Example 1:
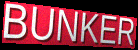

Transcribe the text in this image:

BUNKER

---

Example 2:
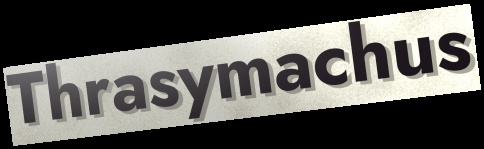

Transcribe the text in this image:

Thrasymachus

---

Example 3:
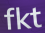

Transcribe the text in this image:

fkt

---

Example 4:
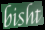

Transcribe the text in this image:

bisht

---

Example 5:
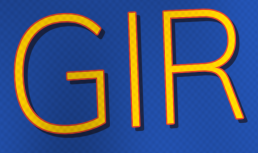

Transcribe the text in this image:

GIR